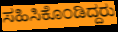
ಸಹಿಸಿಕೊಂಡಿದ್ದರು